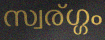
സ്വര്ഗ്ഗം